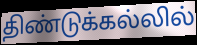
திண்டுக்கல்லில்